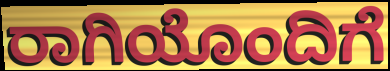
ರಾಗಿಯೊಂದಿಗೆ